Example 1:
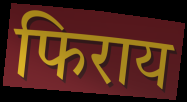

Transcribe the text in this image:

फिराय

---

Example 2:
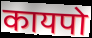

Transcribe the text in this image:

कायपो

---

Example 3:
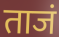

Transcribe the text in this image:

ताजं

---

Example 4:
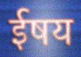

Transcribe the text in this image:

ईषय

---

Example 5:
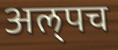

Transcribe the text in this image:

अल्पच